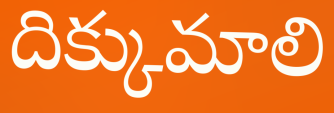
దిక్కుమాలి